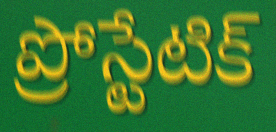
ప్రోస్టేటిక్